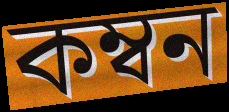
কম্বন